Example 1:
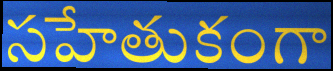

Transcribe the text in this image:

సహేతుకంగా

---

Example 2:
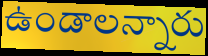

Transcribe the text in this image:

ఉండాలన్నారు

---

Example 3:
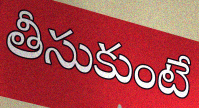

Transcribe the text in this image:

తీసుకుంటే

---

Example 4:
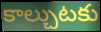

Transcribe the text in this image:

కాల్చుటకు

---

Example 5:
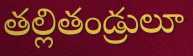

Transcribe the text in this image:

తల్లితండ్రులూ